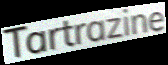
Tartrazine